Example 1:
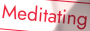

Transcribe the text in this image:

Meditating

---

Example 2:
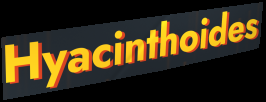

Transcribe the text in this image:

Hyacinthoides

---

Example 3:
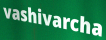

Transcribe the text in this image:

vashivarcha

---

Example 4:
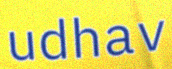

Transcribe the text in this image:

udhav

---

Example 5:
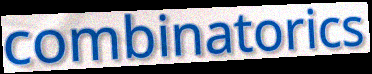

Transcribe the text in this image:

combinatorics